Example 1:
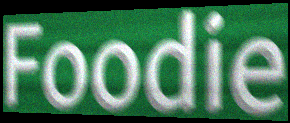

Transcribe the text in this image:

Foodie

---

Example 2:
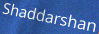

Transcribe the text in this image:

Shaddarshan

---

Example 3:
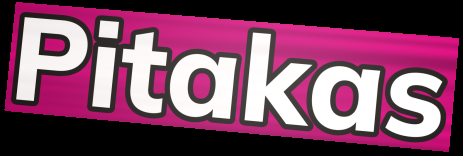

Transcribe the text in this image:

Pitakas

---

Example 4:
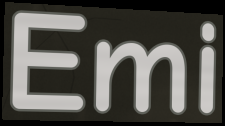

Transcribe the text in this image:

Emi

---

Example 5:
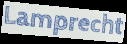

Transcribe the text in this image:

Lamprecht